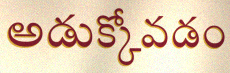
అడుక్కోవడం